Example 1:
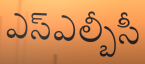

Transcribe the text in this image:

ఎస్ఎల్బీసీ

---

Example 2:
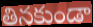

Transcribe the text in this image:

తినకుండా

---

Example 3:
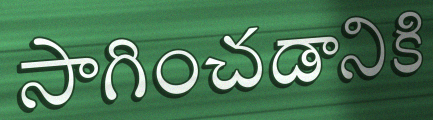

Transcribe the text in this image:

సాగించడానికి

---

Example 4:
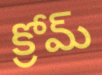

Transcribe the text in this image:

క్రోమ్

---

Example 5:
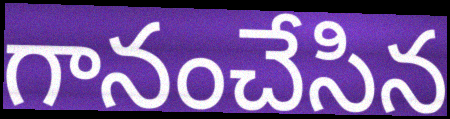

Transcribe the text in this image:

గానంచేసిన